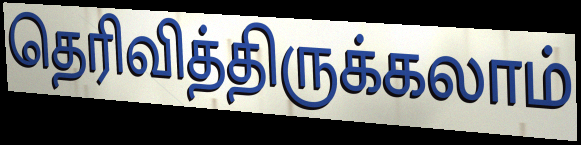
தெரிவித்திருக்கலாம்